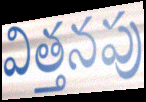
విత్తనపు